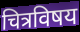
चित्रविषय